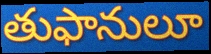
తుఫానులూ